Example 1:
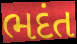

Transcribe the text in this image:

ભદંત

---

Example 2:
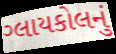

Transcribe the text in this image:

ગ્લાયકોલનું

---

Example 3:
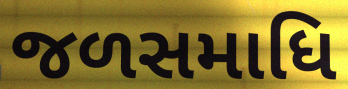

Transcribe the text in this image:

જળસમાધિ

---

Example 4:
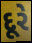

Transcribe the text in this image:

દૂરે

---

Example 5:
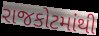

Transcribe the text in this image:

રાજકોટમાંથી